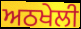
ਅਠਖੇਲੀ